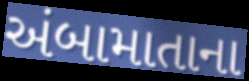
અંબામાતાના